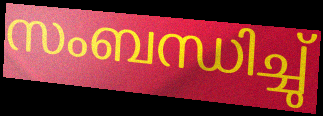
സംബന്ധിച്ചു്